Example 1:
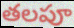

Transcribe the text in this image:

తలపూ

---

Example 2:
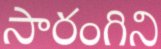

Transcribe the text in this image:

సారంగిని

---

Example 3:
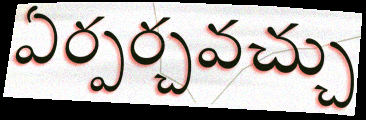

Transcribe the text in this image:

ఏర్పర్చవచ్చు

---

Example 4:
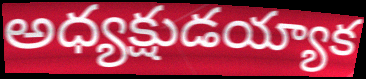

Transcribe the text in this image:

అధ్యక్షుడయ్యాక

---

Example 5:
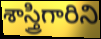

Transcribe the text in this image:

శాస్త్రిగారిని